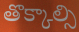
తొక్కాల్సి